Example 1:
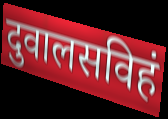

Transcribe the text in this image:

दुवालसविहं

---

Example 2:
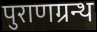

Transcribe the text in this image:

पुराणग्रन्थ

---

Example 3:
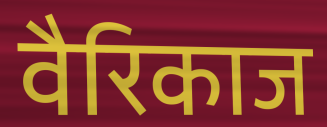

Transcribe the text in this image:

वैरिकाज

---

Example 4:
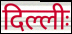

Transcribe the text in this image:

दिल्लीः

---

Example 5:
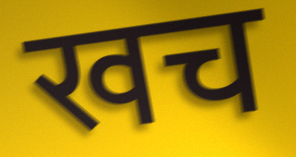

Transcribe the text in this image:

खच